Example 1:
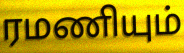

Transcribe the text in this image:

ரமணியும்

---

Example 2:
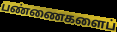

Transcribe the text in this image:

பண்ணைகளைப்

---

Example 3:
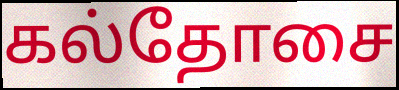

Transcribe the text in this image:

கல்தோசை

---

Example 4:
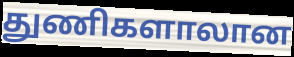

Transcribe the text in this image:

துணிகளாலான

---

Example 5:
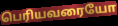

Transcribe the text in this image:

பெரியவரையோ